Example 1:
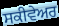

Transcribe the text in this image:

ਸਕੀਵੇਅਰ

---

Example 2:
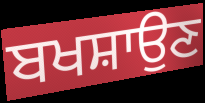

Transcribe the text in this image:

ਬਖਸ਼ਾਉਣ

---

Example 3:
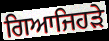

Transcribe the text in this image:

ਗਿਆਜਿਹੜੇ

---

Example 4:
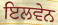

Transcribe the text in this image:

ਇਲਵੇਨ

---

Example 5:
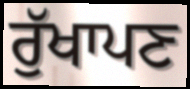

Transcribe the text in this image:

ਰੁੱਖਾਪਣ